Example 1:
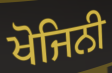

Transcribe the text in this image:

ਖੋਜਿਨੀ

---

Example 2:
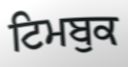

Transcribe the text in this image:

ਟਿਮਬੁਕ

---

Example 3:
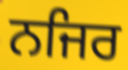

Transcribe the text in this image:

ਨਜਿਰ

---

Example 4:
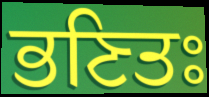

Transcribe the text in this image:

ਭਣਿਤਃ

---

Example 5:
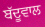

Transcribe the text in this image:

ਬੱਦੂਵਾਲ